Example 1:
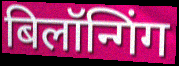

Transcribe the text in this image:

बिलॉन्गिंग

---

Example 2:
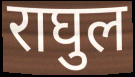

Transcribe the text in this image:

राघुल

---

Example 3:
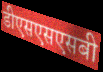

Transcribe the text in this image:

डीएसएसएसबी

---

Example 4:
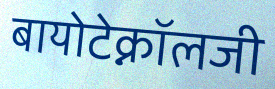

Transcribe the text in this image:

बायोटेक्नॉलजी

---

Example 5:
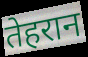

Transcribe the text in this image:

तेहरान